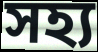
সহ্য